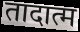
तादात्म